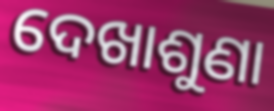
ଦେଖାଶୁଣା